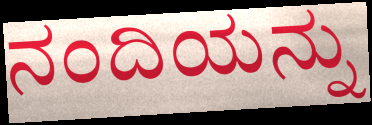
ನಂದಿಯನ್ನು